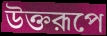
উক্তরূপে